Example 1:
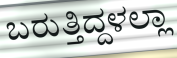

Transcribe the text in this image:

ಬರುತ್ತಿದ್ದಳಲ್ಲಾ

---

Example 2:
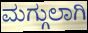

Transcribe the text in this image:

ಮಗ್ಗುಲಾಗಿ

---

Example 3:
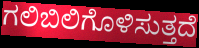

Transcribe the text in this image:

ಗಲಿಬಿಲಿಗೊಳಿಸುತ್ತದೆ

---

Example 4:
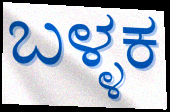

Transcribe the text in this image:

ಬಳ್ಳಕ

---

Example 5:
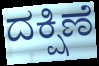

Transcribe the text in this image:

ದಕ್ಷಿಣೆ